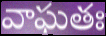
వాఘతః